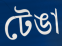
টেঙা